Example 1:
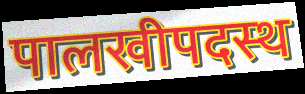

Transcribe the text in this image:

पालखीपदस्थ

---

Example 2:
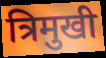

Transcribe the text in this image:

त्रिमुखी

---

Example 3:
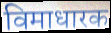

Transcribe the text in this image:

विमाधारक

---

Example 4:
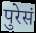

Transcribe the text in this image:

पुरेसं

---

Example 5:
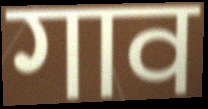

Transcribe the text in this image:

गाव